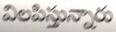
విలపిస్తున్నారు